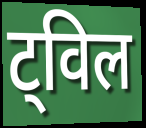
ट्विल